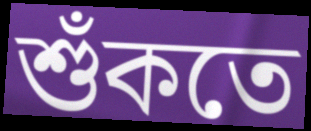
শুঁকতে